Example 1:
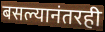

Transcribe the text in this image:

बसल्यानंतरही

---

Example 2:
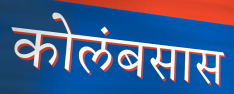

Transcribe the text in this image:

कोलंबसास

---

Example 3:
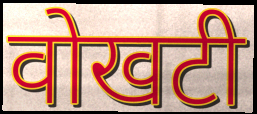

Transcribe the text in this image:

वोखटी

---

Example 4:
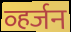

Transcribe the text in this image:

व्हर्जन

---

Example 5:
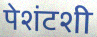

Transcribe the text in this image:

पेशंटशी